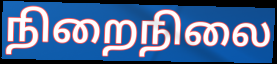
நிறைநிலை